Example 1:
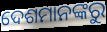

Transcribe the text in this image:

ଦେଶମାନଙ୍କରୁ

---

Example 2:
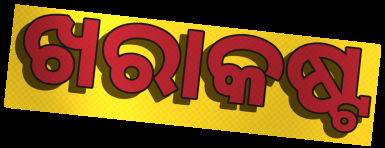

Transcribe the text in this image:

ଖରାକଷ୍ଟ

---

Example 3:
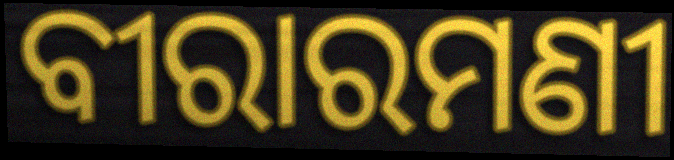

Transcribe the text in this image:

ବୀରାରମଣୀ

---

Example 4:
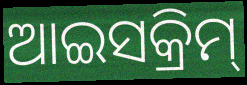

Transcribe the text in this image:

ଆଇସକ୍ରିମ୍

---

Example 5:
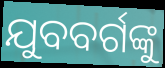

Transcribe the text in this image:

ଯୁବବର୍ଗଙ୍କୁ